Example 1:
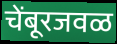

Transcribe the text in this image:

चेंबूरजवळ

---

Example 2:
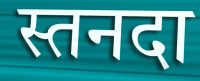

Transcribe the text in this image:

स्तनदा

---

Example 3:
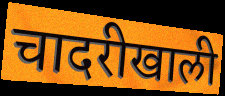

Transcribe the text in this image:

चादरीखाली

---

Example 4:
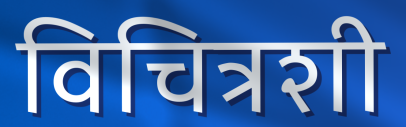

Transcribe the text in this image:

विचित्रशी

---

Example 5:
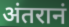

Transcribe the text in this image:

अंतरानं